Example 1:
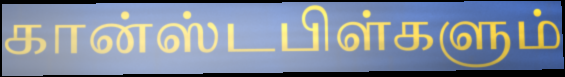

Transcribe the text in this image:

கான்ஸ்டபிள்களும்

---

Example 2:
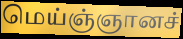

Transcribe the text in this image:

மெய்ஞ்ஞானச்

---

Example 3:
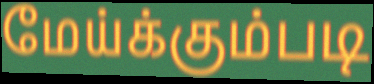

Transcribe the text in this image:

மேய்க்கும்படி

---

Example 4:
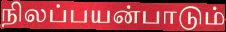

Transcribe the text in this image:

நிலப்பயன்பாடும்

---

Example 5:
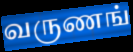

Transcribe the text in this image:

வருணங்